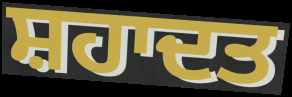
ਸ਼ਹਾਦਤ